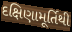
દક્ષિણામૂર્તિથી